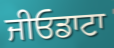
ਜੀਓਡਾਟਾ